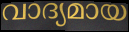
വാദ്യമായ